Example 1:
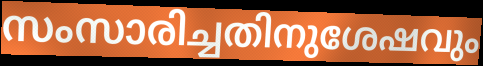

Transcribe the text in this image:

സംസാരിച്ചതിനുശേഷവും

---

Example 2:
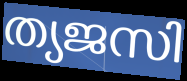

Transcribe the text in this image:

ത്യജസി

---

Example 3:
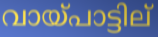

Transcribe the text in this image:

വായ്പാട്ടില്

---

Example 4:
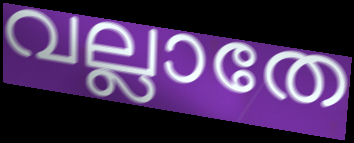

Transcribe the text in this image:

വല്ലാതേ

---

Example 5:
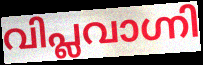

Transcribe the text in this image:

വിപ്ലവാഗ്നി